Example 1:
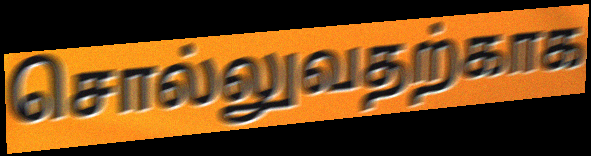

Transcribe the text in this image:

சொல்லுவதற்காக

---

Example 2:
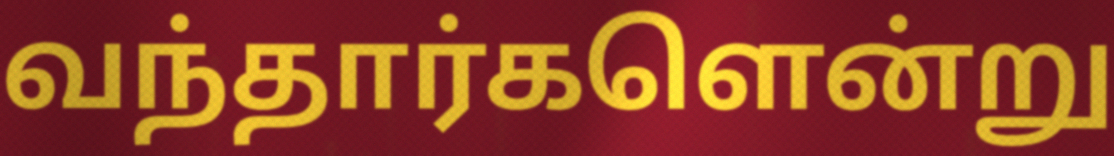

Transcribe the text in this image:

வந்தார்களென்று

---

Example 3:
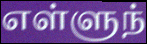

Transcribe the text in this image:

எள்ளுந்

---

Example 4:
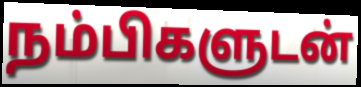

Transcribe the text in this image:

நம்பிகளுடன்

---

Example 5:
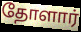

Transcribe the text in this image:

தோளார்